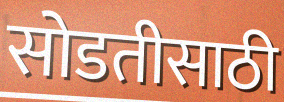
सोडतीसाठी